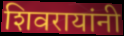
शिवरायांनी